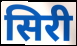
सिरी